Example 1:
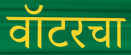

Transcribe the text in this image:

वॉटरचा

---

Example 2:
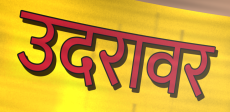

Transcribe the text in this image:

उदरावर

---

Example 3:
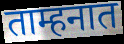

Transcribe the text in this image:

ताम्हनात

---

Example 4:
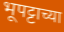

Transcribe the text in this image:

भूपट्टाच्या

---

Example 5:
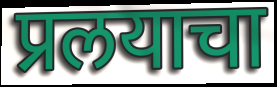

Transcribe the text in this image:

प्रलयाचा